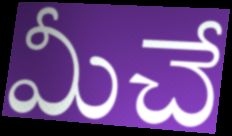
మీచే